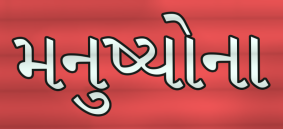
મનુષ્યોના